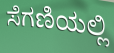
ಸೆಗಣಿಯಲ್ಲಿ